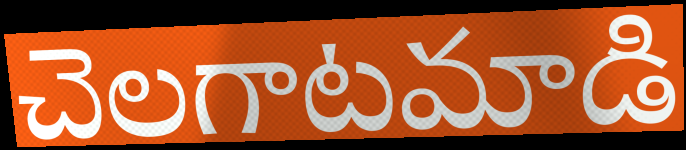
చెలగాటమాడి